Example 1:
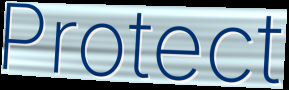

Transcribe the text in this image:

Protect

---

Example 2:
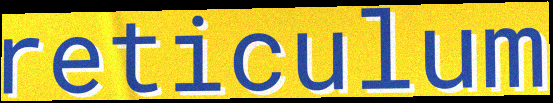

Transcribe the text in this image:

reticulum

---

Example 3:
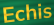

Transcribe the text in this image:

Echis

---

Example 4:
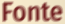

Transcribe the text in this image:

Fonte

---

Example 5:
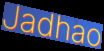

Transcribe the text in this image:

Jadhao